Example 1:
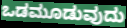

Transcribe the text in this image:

ಒಡಮೂಡುವುದು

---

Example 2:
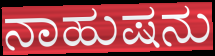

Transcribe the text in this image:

ನಾಹುಷನು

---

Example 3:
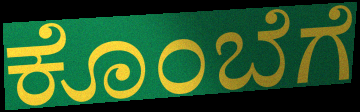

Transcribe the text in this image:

ಕೊಂಬೆಗೆ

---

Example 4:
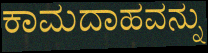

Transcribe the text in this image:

ಕಾಮದಾಹವನ್ನು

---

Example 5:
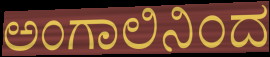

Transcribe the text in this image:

ಅಂಗಾಲಿನಿಂದ